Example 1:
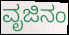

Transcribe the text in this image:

ವೃಜಿನಂ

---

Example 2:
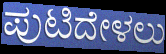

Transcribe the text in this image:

ಪುಟಿದೇಳಲು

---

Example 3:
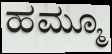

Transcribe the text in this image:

ಹಮ್ಮೂ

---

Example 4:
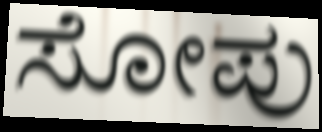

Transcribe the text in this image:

ಸೋಪು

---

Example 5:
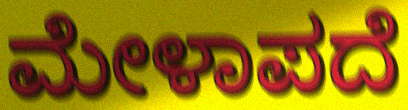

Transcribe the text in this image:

ಮೇಳಾಪದೆ